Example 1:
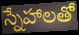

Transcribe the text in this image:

స్నేహాలతో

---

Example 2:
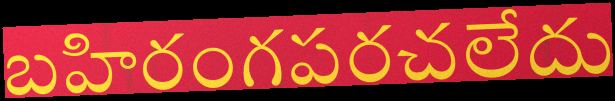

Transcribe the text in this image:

బహిరంగపరచలేదు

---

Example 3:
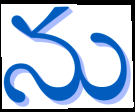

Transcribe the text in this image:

ను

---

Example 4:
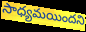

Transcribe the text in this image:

సాధ్యమయిందని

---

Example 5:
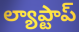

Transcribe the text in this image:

ల్యాప్టాప్